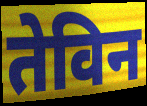
तेविन